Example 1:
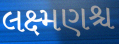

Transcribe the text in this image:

લક્ષ્મણશ્ચ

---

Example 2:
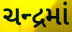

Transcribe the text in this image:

ચન્દ્રમાં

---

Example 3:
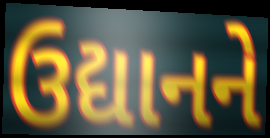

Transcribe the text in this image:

ઉદ્યાનને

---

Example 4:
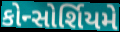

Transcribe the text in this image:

કોન્સોર્શિયમે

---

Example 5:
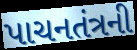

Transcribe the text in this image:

પાચનતંત્રની